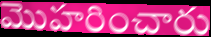
మొహరించారు